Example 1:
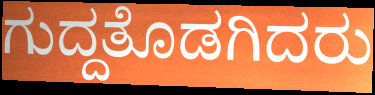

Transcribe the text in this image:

ಗುದ್ದತೊಡಗಿದರು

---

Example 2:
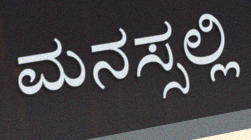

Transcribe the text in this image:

ಮನಸ್ಸಲ್ಲಿ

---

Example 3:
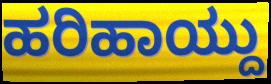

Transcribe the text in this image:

ಹರಿಹಾಯ್ದು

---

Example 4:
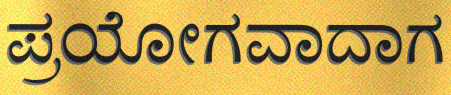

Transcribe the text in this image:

ಪ್ರಯೋಗವಾದಾಗ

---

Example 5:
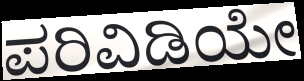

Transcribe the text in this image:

ಪರಿವಿಡಿಯೇ